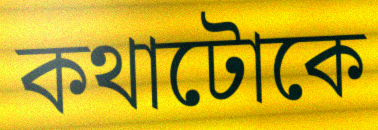
কথাটোকে